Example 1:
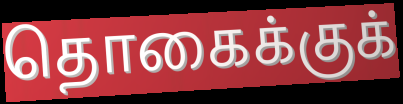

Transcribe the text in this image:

தொகைக்குக்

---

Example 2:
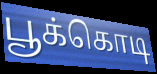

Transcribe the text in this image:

பூக்கொடி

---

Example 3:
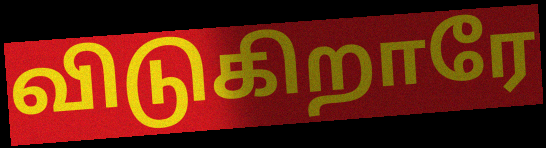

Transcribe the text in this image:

விடுகிறாரே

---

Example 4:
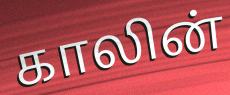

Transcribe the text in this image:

காலின்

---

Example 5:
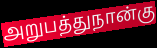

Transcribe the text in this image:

அறுபத்துநான்கு